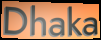
Dhaka